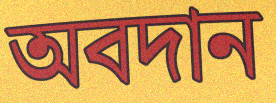
অবদান